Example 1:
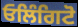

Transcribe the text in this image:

ਓਲਿੰਗਿਟੋ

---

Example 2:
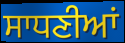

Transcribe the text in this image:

ਸਾਧਣੀਆਂ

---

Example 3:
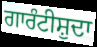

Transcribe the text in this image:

ਗਾਰੰਟੀਸ਼ੁਦਾ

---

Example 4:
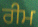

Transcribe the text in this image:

ਰੀਮ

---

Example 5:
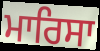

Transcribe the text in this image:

ਮਾਰਿਸਾ